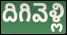
దిగివెళ్లి